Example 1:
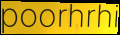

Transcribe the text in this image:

poorhrhi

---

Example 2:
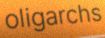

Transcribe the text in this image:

oligarchs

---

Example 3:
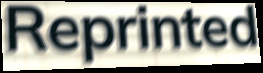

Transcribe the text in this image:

Reprinted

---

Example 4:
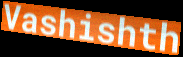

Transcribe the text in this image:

Vashishth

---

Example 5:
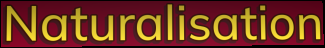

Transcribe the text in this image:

Naturalisation